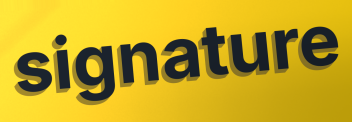
signature